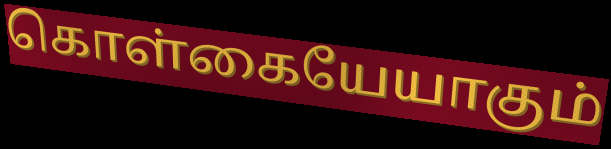
கொள்கையேயாகும்